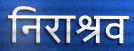
निराश्रव